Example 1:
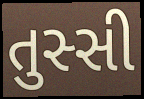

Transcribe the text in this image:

તુસ્સી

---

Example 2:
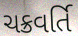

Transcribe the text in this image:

ચક્રવર્તિ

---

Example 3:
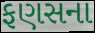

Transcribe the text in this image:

ફણસના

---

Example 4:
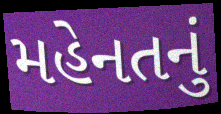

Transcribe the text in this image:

મહેનતનું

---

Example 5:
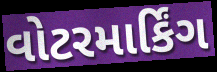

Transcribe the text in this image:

વોટરમાર્કિંગ